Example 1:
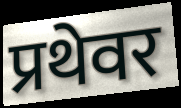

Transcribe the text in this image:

प्रथेवर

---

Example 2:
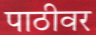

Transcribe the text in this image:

पाठीवर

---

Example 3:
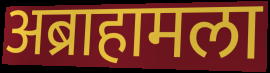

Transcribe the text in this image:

अब्राहामला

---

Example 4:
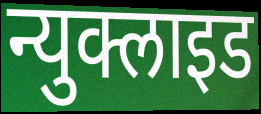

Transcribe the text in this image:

न्युक्लाइड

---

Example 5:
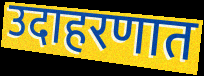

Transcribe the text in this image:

उदाहरणात